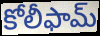
కోలీఫామ్